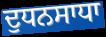
ਦੁਧਨਸਾਧਾ